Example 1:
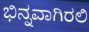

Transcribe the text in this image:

ಭಿನ್ನವಾಗಿರಲಿ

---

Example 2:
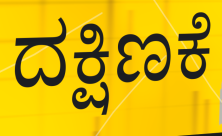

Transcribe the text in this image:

ದಕ್ಷಿಣಕೆ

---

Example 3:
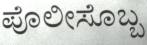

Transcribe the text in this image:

ಪೊಲೀಸೊಬ್ಬ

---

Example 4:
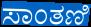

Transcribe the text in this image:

ಸಾಂತಣಿ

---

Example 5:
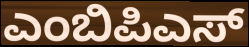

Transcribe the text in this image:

ಎಂಬಿಪಿಎಸ್